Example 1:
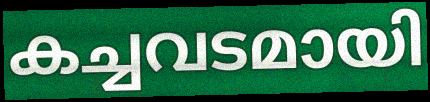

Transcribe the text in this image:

കച്ചവടമായി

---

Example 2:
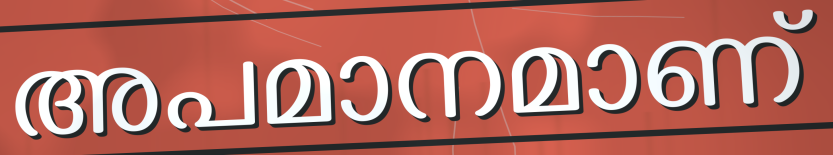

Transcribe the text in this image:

അപമാനമാണ്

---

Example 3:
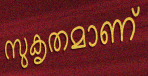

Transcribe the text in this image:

സുകൃതമാണ്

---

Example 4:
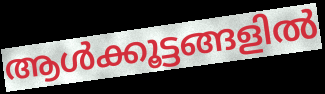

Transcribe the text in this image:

ആൾക്കൂട്ടങ്ങളിൽ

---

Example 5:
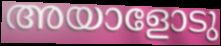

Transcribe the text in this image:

അയാളോടു